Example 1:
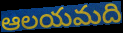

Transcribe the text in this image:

ఆలయమది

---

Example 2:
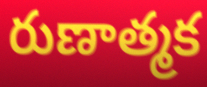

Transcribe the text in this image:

రుణాత్మక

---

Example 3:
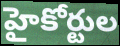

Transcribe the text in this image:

హైకోర్టుల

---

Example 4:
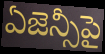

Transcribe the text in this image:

ఏజెన్సీపై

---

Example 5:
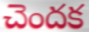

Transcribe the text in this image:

చెందక